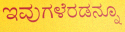
ಇವುಗಳೆರಡನ್ನೂ